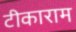
टीकाराम